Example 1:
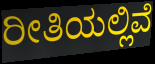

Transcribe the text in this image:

ರೀತಿಯಲ್ಲಿವೆ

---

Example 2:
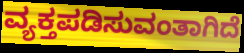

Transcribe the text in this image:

ವ್ಯಕ್ತಪಡಿಸುವಂತಾಗಿದೆ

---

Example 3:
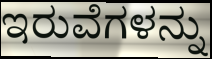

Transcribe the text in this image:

ಇರುವೆಗಳನ್ನು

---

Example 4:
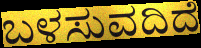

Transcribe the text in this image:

ಬಳಸುವದಿದೆ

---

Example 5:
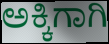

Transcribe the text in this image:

ಅಕ್ಕಿಗಾಗಿ